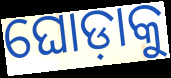
ଘୋଡ଼ାକୁ